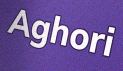
Aghori